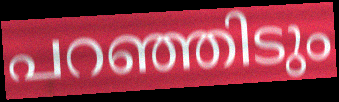
പറഞ്ഞിടും